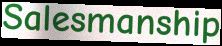
Salesmanship